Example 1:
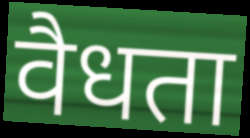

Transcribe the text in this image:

वैधता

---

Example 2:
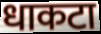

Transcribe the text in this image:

धाकटा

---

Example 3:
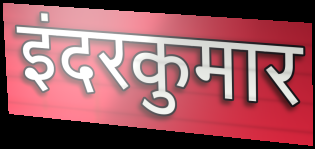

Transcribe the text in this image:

इंदरकुमार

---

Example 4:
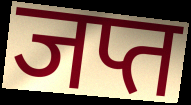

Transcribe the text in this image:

जप्त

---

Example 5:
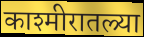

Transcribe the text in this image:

काश्मीरातल्या